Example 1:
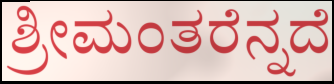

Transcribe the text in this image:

ಶ್ರೀಮಂತರೆನ್ನದೆ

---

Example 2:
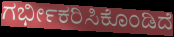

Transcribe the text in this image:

ಗರ್ಭೀಕರಿಸಿಕೊಂಡಿದೆ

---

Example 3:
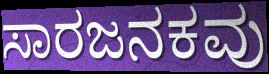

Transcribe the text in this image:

ಸಾರಜನಕವು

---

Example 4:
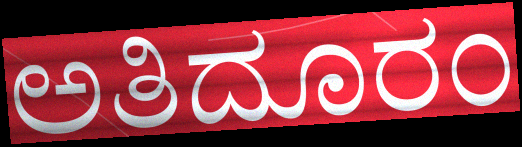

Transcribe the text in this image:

ಅತಿದೂರಂ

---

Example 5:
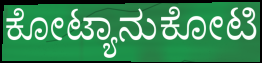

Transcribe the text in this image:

ಕೋಟ್ಯಾನುಕೋಟಿ